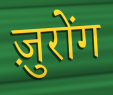
ज़ुरोंग